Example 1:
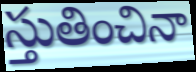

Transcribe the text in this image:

స్తుతించినా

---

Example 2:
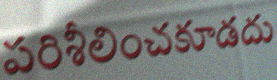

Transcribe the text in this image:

పరిశీలించకూడదు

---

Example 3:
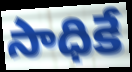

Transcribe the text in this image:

సాధికే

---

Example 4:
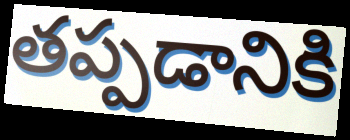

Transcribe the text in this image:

తప్పడానికి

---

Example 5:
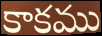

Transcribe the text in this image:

కాకము